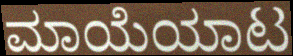
ಮಾಯೆಯಾಟ